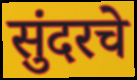
सुंदरचे